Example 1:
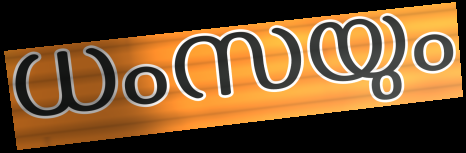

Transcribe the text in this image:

ധംസയും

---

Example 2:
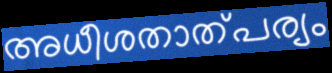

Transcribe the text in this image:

അധീശതാത്പര്യം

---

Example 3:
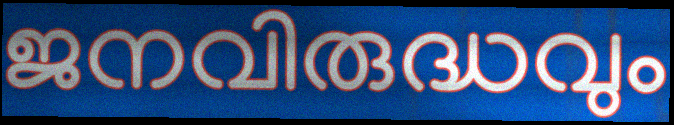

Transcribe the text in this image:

ജനവിരുദ്ധവും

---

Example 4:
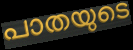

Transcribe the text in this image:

പാതയുടെ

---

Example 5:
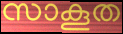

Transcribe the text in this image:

സാകൂത